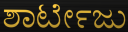
ಶಾರ್ಟೇಜು